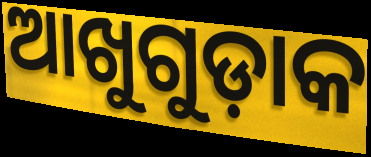
ଆଖୁଗୁଡ଼ାକ